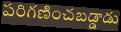
పరిగణించబడ్డాడు